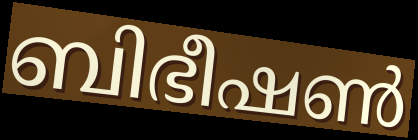
ബിഭീഷൺ